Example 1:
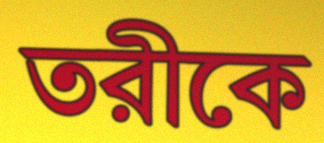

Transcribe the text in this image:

তরীকে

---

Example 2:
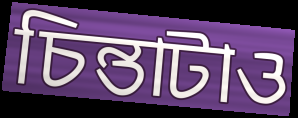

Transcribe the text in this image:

চিন্তাটাও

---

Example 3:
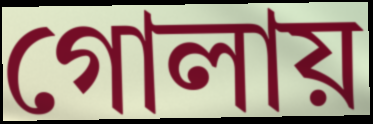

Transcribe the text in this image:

গোলায়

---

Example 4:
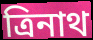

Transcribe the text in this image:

ত্রিনাথ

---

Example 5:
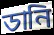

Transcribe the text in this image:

ডানি